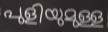
പുളിയുമുള്ള